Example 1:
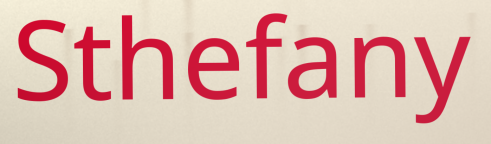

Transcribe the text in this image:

Sthefany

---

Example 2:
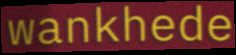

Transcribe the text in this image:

wankhede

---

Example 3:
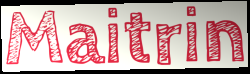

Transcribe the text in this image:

Maitrin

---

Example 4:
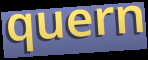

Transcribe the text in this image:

quern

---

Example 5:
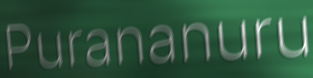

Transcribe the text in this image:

Purananuru